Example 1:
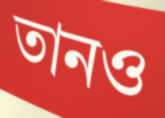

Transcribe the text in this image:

তানও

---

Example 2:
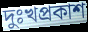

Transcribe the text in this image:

দুঃখপ্রকাশ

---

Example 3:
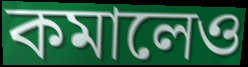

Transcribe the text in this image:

কমালেও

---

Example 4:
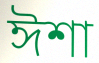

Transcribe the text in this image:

ঈশা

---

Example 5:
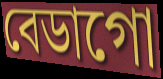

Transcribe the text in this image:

বেডাগো